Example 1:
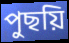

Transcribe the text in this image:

পুছয়ি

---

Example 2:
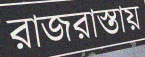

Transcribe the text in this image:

রাজরাস্তায়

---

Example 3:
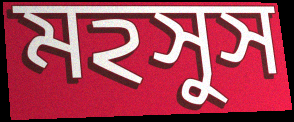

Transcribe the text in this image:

মহসুস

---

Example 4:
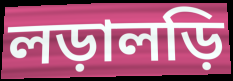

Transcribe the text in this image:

লড়ালড়ি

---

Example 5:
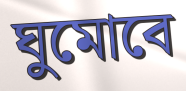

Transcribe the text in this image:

ঘুমোবে